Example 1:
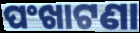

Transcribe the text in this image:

ପଂଖାଟଣା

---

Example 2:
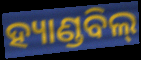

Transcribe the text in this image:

ହ୍ୟାଣ୍ଡବିଲ୍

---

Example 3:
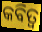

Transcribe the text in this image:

କବିତ୍ବ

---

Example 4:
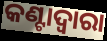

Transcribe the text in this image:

କଣ୍ଟାଦ୍ୱାରା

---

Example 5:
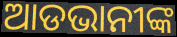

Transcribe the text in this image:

ଆଡଭାନୀଙ୍କ